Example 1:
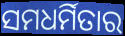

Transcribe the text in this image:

ସମଧର୍ମିତାର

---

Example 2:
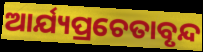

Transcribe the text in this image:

ଆର୍ଯ୍ୟପ୍ରଚେତାବୃନ୍ଦ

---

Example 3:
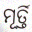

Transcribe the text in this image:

ମୂର୍ତ୍ତି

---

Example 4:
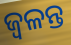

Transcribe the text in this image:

ଜ୍ବଳନ୍ତ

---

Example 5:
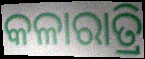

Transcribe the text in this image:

କଳାରାତ୍ରି